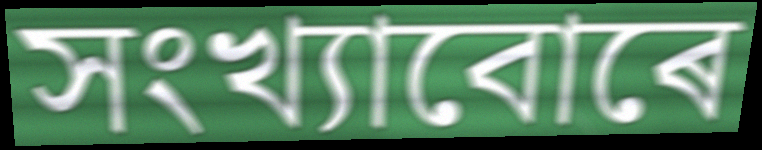
সংখ্যাবোৰে